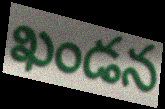
ఖండన